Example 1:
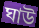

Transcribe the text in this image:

ঘাউ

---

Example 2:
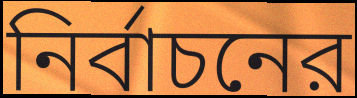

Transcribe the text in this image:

নির্বাচনের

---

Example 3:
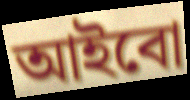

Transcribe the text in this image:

আইবো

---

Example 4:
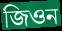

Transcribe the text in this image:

জিওন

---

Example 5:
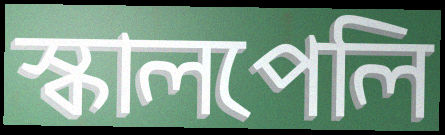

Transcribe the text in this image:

স্কালপেলি